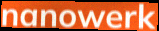
nanowerk